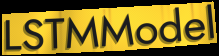
LSTMModel